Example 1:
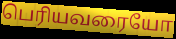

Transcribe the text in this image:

பெரியவரையோ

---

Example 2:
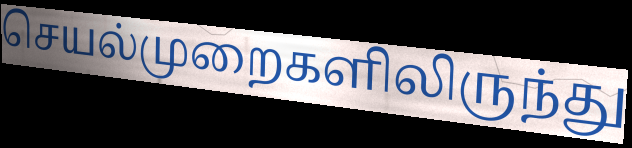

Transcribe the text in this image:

செயல்முறைகளிலிருந்து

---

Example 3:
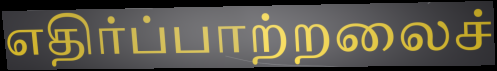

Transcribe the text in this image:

எதிர்ப்பாற்றலைச்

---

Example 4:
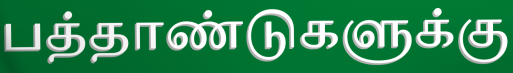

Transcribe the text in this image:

பத்தாண்டுகளுக்கு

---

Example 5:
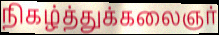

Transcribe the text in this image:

நிகழ்த்துக்கலைஞர்